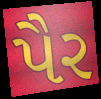
પૈર